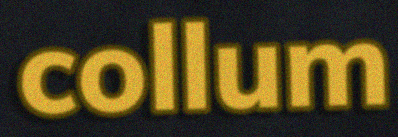
collum